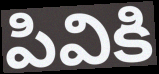
పివికి